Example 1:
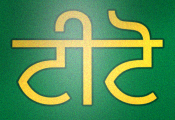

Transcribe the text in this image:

ਟੀਟੋ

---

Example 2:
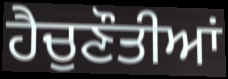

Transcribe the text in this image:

ਹੈਚੁਣੌਤੀਆਂ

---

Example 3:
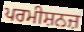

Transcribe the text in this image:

ਪਰਮੀਸ਼ਨਜ਼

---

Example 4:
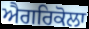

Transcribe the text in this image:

ਐਗਰਿਕੋਲਾ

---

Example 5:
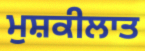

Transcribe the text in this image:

ਮੁਸ਼ਕੀਲਾਤ